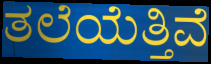
ತಲೆಯೆತ್ತಿವೆ